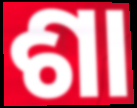
ଶା